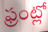
ఫ్రంట్లో